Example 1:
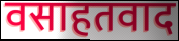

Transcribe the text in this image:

वसाहतवाद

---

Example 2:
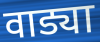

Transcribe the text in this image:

वाड्या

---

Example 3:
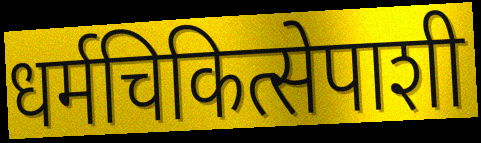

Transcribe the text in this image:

धर्मचिकित्सेपाशी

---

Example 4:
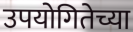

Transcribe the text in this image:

उपयोगितेच्या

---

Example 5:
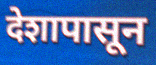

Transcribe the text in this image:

देशापासून